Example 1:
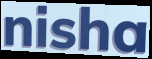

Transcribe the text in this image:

nisha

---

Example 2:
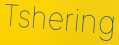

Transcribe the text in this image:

Tshering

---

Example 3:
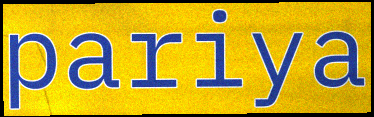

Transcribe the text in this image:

pariya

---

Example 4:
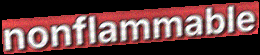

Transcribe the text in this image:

nonflammable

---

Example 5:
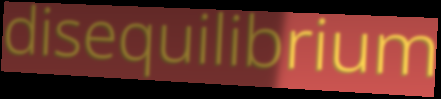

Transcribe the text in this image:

disequilibrium